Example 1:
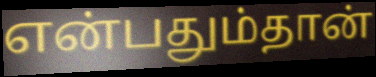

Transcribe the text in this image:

என்பதும்தான்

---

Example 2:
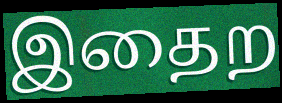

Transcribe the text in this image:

இதைற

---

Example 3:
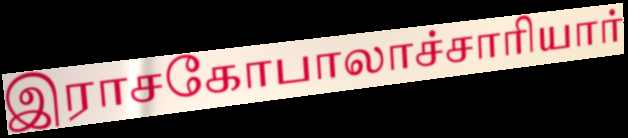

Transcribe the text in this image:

இராசகோபாலாச்சாரியார்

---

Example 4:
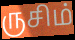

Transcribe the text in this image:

ருசிம்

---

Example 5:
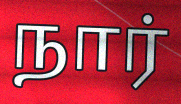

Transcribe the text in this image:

நார்